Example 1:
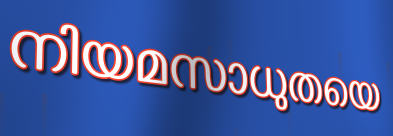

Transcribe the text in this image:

നിയമസാധുതയെ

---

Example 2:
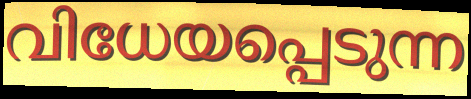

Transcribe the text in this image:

വിധേയപ്പെടുന്ന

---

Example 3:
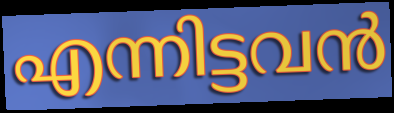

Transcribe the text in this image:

എന്നിട്ടവൻ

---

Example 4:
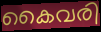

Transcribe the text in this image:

കൈവരി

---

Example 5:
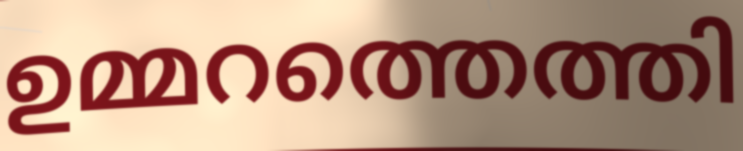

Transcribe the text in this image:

ഉമ്മറത്തെത്തി